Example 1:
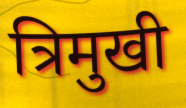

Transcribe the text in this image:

त्रिमुखी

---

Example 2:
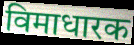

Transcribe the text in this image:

विमाधारक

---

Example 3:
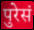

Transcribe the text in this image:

पुरेसं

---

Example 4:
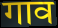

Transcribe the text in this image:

गाव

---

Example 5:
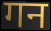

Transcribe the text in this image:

गन